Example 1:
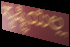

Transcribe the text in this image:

ಸೃಷ್ಟಿಯಿಲ್ಲ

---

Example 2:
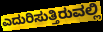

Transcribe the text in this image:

ಎದುರಿಸುತ್ತಿರುವಲ್ಲಿ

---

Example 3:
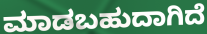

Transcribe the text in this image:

ಮಾಡಬಹುದಾಗಿದೆ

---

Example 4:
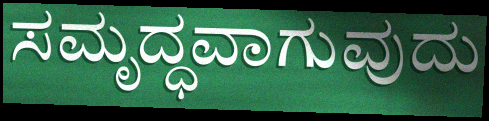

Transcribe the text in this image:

ಸಮೃದ್ಧವಾಗುವುದು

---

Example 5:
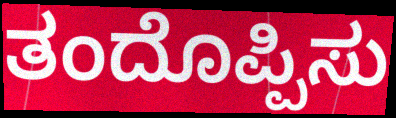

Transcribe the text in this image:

ತಂದೊಪ್ಪಿಸು